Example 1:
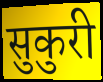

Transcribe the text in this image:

सुकुरी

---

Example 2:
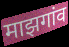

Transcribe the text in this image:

माझगांव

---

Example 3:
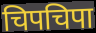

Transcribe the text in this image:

चिपचिपा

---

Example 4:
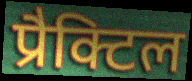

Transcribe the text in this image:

प्रैक्टिल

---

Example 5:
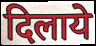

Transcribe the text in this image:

दिलाये